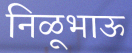
निळूभाऊ